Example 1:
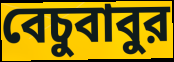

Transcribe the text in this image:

বেচুবাবুর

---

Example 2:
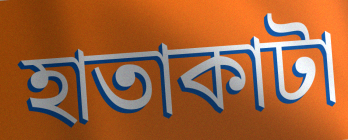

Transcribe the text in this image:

হাতাকাটা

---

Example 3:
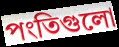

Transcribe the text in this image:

পংতিগুলো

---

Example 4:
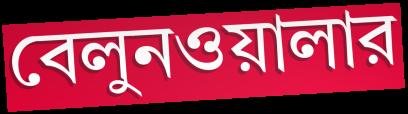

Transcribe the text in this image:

বেলুনওয়ালার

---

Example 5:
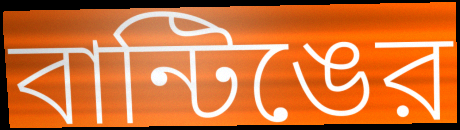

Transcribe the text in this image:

বান্টিঙের